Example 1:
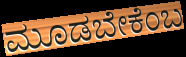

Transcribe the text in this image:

ಮೂಡಬೇಕೆಂಬ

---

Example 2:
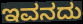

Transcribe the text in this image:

ಇವನದು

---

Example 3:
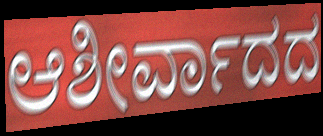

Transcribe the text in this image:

ಆಶೀರ್ವಾದದ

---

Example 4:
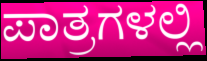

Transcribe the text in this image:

ಪಾತ್ರಗಳಲ್ಲಿ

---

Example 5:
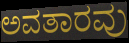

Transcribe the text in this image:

ಅವತಾರವು